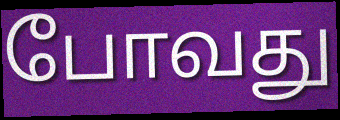
போவது